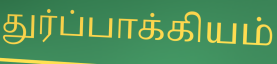
துர்ப்பாக்கியம்